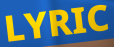
LYRIC